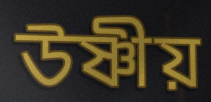
উষ্ণীয়